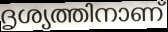
ദൃശ്യത്തിനാണ്